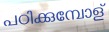
പഠിക്കുമ്പോള്